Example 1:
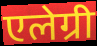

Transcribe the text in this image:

एलेग्री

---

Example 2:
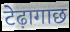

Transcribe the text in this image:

टेढ़ागाछ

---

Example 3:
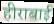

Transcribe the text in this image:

हीराबाई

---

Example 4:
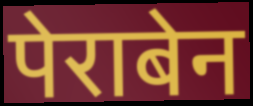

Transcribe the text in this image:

पेराबेन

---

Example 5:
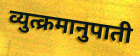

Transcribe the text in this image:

व्युत्क्रमानुपाती